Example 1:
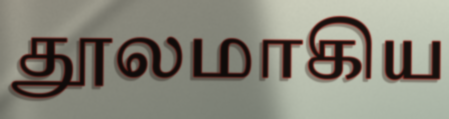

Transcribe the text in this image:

தூலமாகிய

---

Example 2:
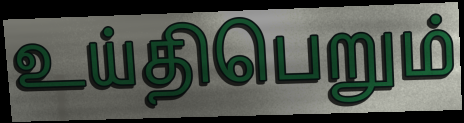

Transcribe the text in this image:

உய்திபெறும்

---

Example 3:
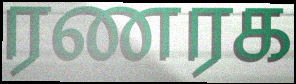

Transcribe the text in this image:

ரணரக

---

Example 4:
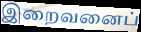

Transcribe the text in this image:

இறைவனைப்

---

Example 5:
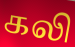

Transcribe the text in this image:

கலி